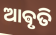
ଆଵୃତି